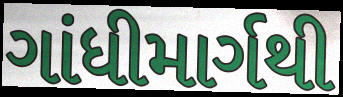
ગાંધીમાર્ગથી